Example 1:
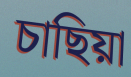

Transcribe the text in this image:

চাছিয়া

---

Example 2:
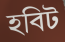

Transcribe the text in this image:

হবিট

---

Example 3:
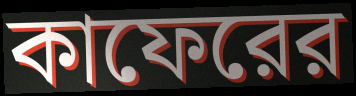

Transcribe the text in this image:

কাফেরের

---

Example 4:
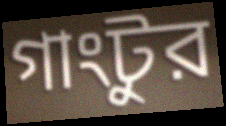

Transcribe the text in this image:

গাংটুর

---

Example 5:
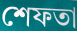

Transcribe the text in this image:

শেফতা